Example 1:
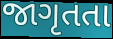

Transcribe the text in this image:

જાગૃતતા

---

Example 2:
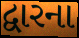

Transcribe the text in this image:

દ્વારના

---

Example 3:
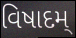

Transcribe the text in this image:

વિષાદમ્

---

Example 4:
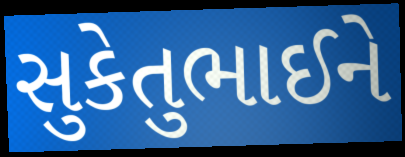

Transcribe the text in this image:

સુકેતુભાઈને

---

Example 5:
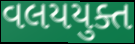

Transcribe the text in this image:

વલયયુક્ત